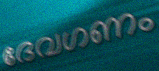
ദേവഗണം